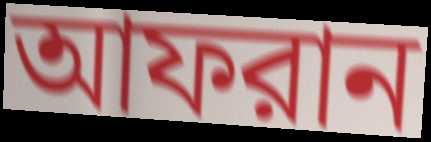
আফরান